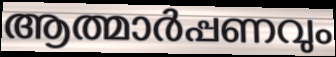
ആത്മാർപ്പണവും